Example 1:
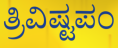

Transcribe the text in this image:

ತ್ರಿವಿಷ್ಟಪಂ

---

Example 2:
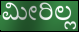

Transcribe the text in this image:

ಮೀರಿಲ್ಲ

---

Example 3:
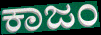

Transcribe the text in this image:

ಕಾಜಂ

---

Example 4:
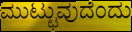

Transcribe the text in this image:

ಮುಟ್ಟುವುದೆಂದು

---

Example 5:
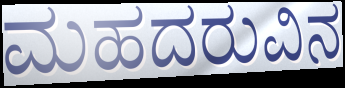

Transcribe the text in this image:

ಮಹದರುವಿನ